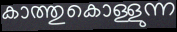
കാത്തുകൊള്ളുന്ന